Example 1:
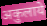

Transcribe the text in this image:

अकुलाये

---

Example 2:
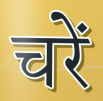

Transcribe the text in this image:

चरें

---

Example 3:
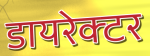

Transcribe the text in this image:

डायरेक्‍टर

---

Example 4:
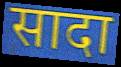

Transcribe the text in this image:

सादा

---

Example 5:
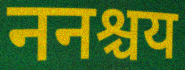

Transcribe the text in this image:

ननश्चय